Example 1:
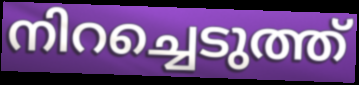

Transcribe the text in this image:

നിറച്ചെടുത്ത്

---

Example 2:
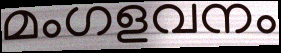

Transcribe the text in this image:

മംഗളവനം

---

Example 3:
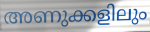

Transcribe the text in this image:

അണുക്കളിലും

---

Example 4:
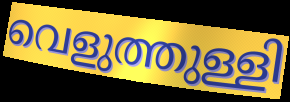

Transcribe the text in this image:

വെളുത്തുള്ളി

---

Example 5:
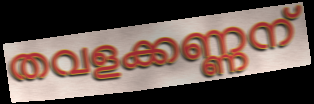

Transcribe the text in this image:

തവളക്കണ്ണന്